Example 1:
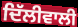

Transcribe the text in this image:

ਦਿੱਲੀਵਾਲੀ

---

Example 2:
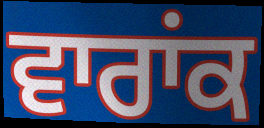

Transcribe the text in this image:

ਵਾਰਾਂਕ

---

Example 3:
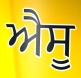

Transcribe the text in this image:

ਐਸੂ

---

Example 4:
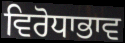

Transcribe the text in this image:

ਵਿਰੋਧਾਭਾਵ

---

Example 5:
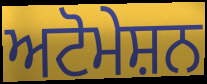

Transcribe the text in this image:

ਅਟੋਮੇਸ਼ਨ